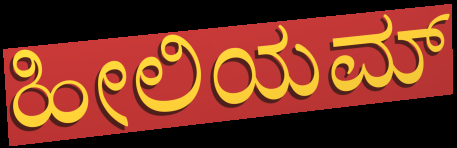
ಹೀಲಿಯಮ್